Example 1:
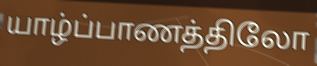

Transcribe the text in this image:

யாழ்ப்பாணத்திலோ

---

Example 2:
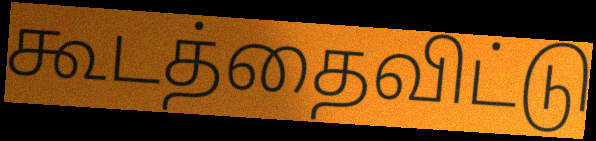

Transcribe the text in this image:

கூடத்தைவிட்டு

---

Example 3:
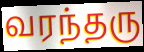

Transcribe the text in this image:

வரந்தரு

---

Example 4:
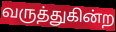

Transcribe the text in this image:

வருத்துகின்ற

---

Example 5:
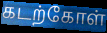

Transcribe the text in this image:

கடற்கோள்